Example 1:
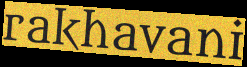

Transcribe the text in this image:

rakhavani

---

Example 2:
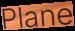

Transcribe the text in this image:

Plane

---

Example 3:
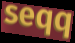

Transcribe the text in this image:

seqq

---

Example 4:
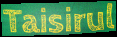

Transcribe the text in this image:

Taisirul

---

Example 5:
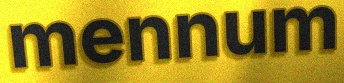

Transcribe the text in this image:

mennum